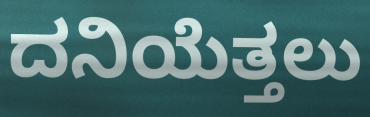
ದನಿಯೆತ್ತಲು